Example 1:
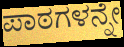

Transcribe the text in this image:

ಪಾಠಗಳನ್ನೇ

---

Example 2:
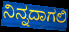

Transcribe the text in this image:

ನಿನ್ನದಾಗಲಿ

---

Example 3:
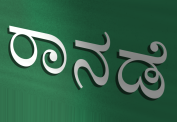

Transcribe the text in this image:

ರಾನಡೆ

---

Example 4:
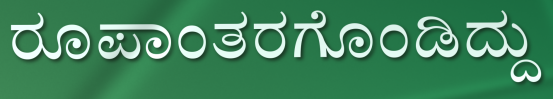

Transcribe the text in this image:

ರೂಪಾಂತರಗೊಂಡಿದ್ದು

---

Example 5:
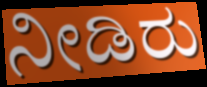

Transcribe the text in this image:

ನೀಡಿರು